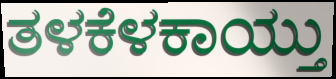
ತಳಕೆಳಕಾಯ್ತು